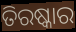
ତିରଷ୍କାର